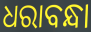
ଧରାବନ୍ଧା